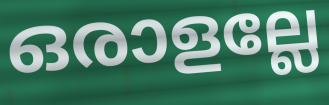
ഒരാളല്ലേ